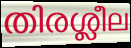
തിരശ്ലീല